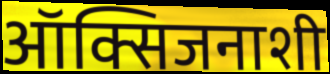
ऑक्सिजनाशी